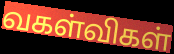
வகள்விகள்